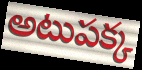
అటుపక్క